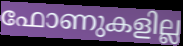
ഫോണുകളില്ല